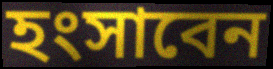
হংসাবেন